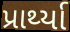
પ્રાર્થ્યા